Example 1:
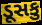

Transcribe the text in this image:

ડૂસકુ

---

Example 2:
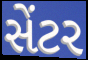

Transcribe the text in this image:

સેંટર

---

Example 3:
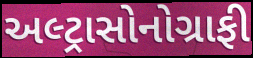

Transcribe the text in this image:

અલ્ટ્રાસોનોગ્રાફી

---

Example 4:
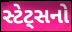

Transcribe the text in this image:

સ્ટેટ્સનો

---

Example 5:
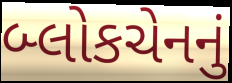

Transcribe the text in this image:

બ્લોકચેનનું